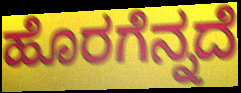
ಹೊರಗೆನ್ನದೆ